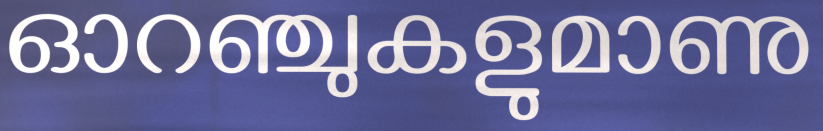
ഓറഞ്ചുകളുമാണു